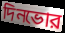
দিনভোর